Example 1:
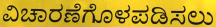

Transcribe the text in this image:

ವಿಚಾರಣೆಗೊಳಪಡಿಸಲು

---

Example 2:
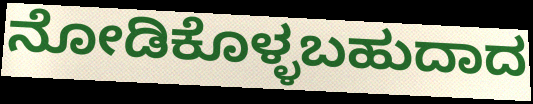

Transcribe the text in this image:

ನೋಡಿಕೊಳ್ಳಬಹುದಾದ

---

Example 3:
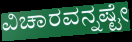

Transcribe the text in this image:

ವಿಚಾರವನ್ನಷ್ಟೇ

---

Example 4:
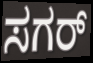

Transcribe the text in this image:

ಸಗರ್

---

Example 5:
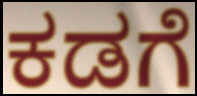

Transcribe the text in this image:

ಕಡಗೆ